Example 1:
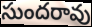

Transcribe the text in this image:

సుందరావు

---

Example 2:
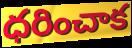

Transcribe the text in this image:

ధరించాక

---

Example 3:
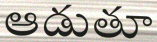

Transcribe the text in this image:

ఆడుతూ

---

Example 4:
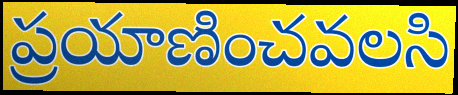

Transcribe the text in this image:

ప్రయాణించవలసి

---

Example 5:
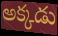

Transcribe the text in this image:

అక్కడు